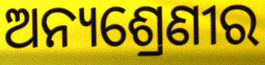
ଅନ୍ୟଶ୍ରେଣୀର